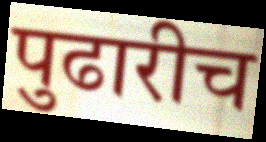
पुढारीच